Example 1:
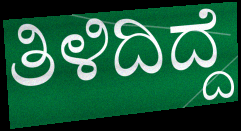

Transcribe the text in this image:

ತಿಳಿದಿದ್ದೆ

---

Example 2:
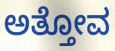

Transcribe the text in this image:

ಅತ್ತೋವ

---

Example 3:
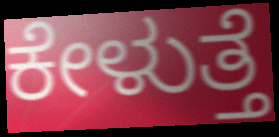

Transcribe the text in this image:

ಕೇಳುತ್ತೆ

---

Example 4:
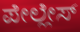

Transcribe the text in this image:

ಪೇಲ್ಲೇಸ್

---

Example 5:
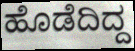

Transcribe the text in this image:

ಹೊಡೆದಿದ್ದ